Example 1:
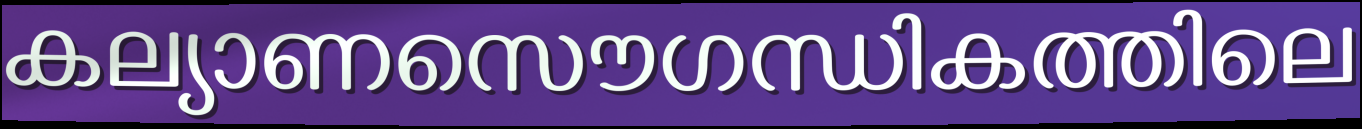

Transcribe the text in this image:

കല്യാണസൌഗന്ധികത്തിലെ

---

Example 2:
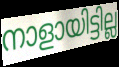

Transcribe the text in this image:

നാളായിട്ടില്ല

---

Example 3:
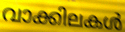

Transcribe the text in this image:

വാക്കിലകൾ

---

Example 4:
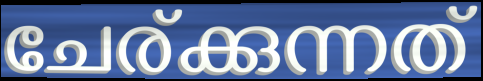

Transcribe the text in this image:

ചേര്ക്കുന്നത്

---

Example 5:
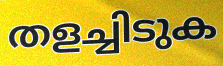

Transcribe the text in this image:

തളച്ചിടുക